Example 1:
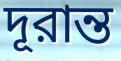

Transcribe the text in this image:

দূরান্ত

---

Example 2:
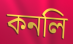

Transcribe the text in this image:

কনলি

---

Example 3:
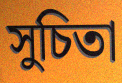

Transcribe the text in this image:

সুচিতা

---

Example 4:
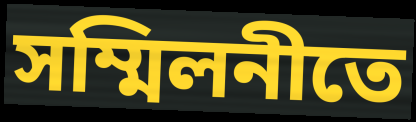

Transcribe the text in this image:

সম্মিলনীতে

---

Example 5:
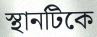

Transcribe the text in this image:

স্থানটিকে